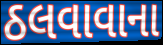
ઠલવાવાના